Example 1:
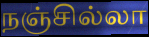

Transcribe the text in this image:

நஞ்சில்லா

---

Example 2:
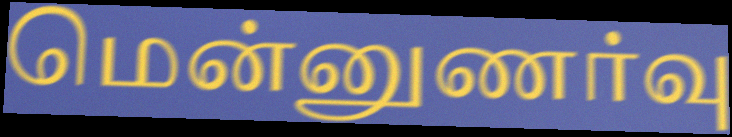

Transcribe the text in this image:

மென்னுணர்வு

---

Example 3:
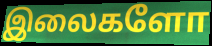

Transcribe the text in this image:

இலைகளோ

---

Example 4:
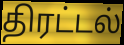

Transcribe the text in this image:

திரட்டல்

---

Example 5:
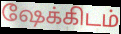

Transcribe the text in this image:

ஷேக்கிடம்